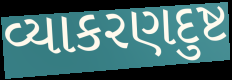
વ્યાકરણદુષ્ટ